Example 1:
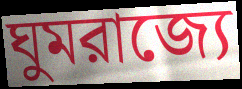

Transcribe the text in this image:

ঘুমরাজ্যে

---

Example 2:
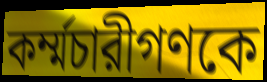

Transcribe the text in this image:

কর্ম্মচারীগণকে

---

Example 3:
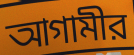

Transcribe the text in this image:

আগামীর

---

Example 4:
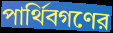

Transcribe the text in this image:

পার্থিবগণের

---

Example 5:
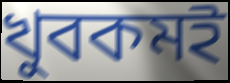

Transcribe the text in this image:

খুবকমই